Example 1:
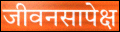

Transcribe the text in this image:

जीवनसापेक्ष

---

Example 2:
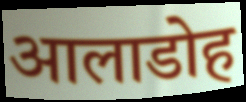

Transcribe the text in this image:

आलाडोह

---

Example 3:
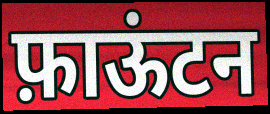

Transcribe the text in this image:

फ़ाऊंटन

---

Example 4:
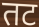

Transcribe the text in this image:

तट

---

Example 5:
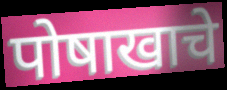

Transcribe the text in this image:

पोषाखाचे